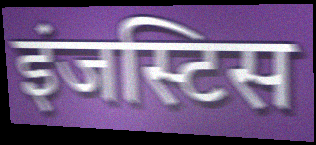
इंजस्टिस